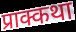
प्राक्कथा